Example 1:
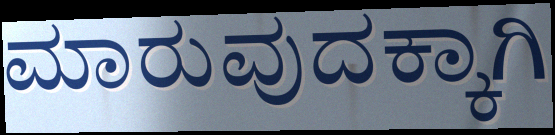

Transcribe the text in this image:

ಮಾರುವುದಕ್ಕಾಗಿ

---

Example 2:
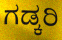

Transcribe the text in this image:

ಗಡ್ಕರಿ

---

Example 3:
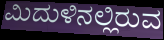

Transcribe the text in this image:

ಮಿದುಳಿನಲ್ಲಿರುವ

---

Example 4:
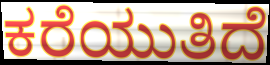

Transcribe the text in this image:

ಕರೆಯುತಿದೆ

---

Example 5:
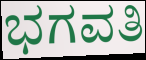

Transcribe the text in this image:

ಭಗವತಿ